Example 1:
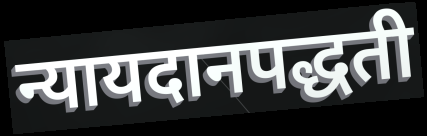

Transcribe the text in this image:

न्यायदानपद्धती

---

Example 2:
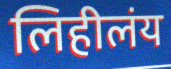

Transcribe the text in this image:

लिहीलंय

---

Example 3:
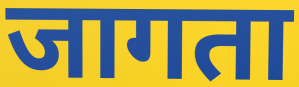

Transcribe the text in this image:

जागता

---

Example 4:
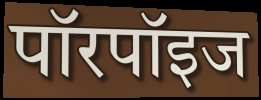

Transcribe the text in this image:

पॉरपॉइज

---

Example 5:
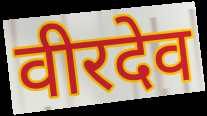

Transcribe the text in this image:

वीरदेव